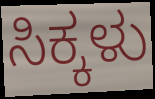
ಸಿಕ್ಕಳು